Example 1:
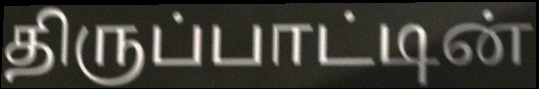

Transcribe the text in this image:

திருப்பாட்டின்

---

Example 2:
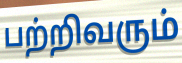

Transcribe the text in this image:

பற்றிவரும்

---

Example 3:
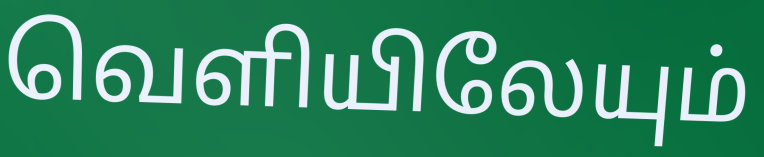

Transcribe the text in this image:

வெளியிலேயும்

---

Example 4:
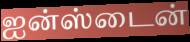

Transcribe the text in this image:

ஐன்ஸ்டைன்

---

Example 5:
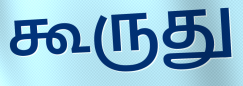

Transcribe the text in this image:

கூருது